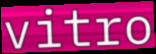
vitro